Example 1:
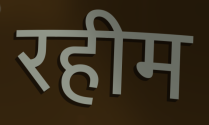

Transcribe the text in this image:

रहीम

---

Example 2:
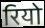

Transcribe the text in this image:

रियो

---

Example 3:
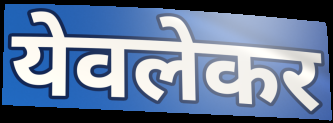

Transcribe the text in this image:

येवलेकर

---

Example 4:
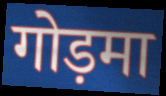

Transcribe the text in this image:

गोड़मा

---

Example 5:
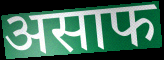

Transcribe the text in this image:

असाफ